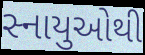
સ્નાયુઓથી